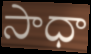
సాధా